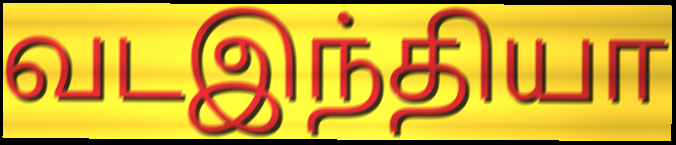
வடஇந்தியா